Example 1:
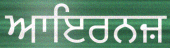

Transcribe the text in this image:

ਆਇਰਨਜ਼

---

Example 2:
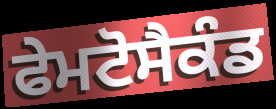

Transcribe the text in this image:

ਫੇਮਟੋਸੈਕੰਡ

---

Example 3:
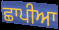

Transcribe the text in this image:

ਛਾਪੀਆ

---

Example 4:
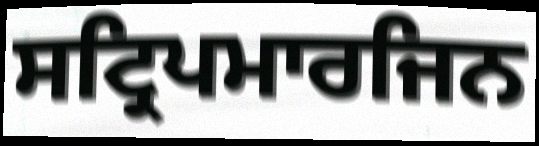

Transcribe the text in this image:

ਸਟ੍ਰਿਪਮਾਰਜਿਨ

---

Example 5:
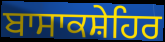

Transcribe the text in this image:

ਬਾਸਾਕਸ਼ੇਹਿਰ